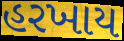
હરખાય